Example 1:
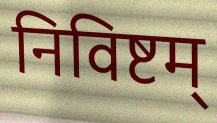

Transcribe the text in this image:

निविष्टम्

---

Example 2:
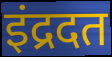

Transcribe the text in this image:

इंद्रदत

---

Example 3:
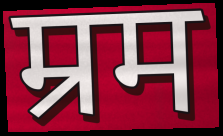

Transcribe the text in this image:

म्रम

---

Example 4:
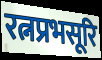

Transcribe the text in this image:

रत्नप्रभसूरि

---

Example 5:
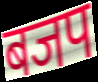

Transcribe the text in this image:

बजप